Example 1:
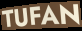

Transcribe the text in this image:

TUFAN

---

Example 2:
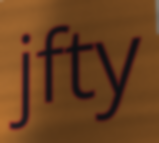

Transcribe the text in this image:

jfty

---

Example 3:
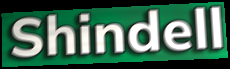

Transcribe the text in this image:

Shindell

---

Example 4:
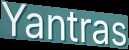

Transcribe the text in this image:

Yantras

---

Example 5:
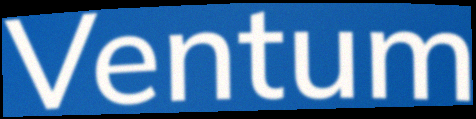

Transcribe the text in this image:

Ventum